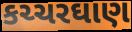
કચ્ચરઘાણ